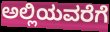
ಅಲ್ಲಿಯವರೆಗೆ